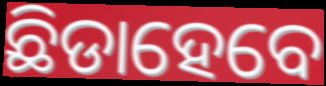
ଛିଡାହେବେ